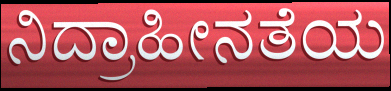
ನಿದ್ರಾಹೀನತೆಯ